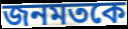
জনমতকে